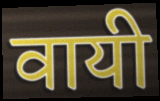
वायी